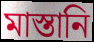
মাস্তানি